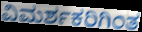
ವಿಮರ್ಶಕರಿಗಿಂತ